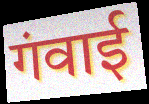
गंवाई